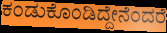
ಕಂಡುಕೊಂಡಿದ್ದೇನೆಂದರೆ